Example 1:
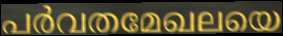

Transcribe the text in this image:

പർവതമേഖലയെ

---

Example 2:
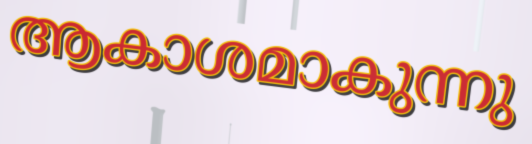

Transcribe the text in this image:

ആകാശമാകുന്നു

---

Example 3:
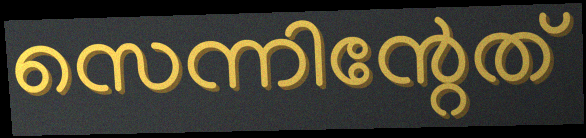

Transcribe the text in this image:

സെന്നിന്റേത്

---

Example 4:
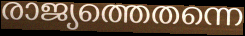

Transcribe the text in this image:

രാജ്യത്തെതന്നെ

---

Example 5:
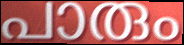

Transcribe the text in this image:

പാരും